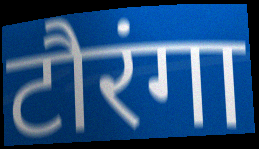
टौरंगा